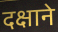
दक्षाने